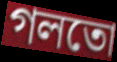
গলতো